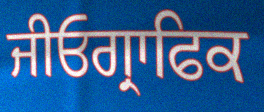
ਜੀਓਗ੍ਰਾਫਿਕ